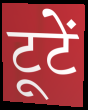
टूटें